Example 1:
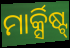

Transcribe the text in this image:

ମାର୍କ୍ସିଷ୍ଟ୍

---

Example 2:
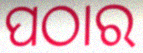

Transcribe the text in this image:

ପଠାର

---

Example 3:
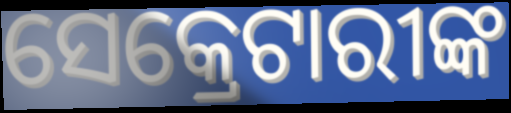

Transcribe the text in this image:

ସେକ୍ରେଟାରୀଙ୍କ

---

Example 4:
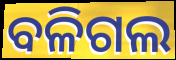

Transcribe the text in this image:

ବଳିଗଲ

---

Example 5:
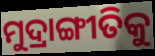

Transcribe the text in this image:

ମୁଦ୍ରାଙ୍ଗୀତିକୁ